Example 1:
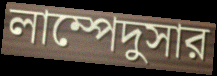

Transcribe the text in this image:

লাম্পেদুসার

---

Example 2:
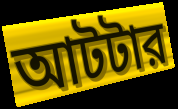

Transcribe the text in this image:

আটটার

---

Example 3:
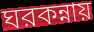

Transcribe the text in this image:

ঘরকন্নায়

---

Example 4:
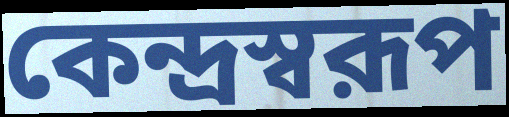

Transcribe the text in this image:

কেন্দ্রস্বরূপ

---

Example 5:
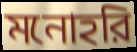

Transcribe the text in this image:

মনোহরি